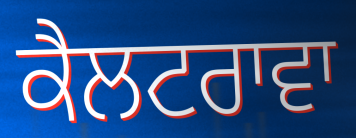
ਕੈਲਟਰਾਵਾ